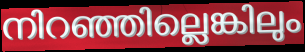
നിറഞ്ഞില്ലെങ്കിലും